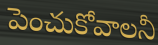
పెంచుకోవాలనీ